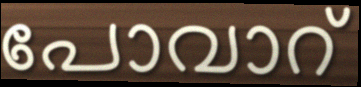
പോവാറ്